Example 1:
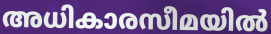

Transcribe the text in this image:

അധികാരസീമയിൽ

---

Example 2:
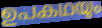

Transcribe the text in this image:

ഉപകഥയും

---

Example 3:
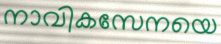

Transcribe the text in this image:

നാവികസേനയെ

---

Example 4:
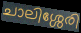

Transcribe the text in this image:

ചാലിശ്ശേരി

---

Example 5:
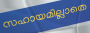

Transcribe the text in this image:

സഹായമില്ലാതെ